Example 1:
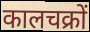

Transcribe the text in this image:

कालचक्रों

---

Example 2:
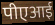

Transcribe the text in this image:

पीएआई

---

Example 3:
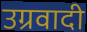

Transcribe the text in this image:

उग्रवादी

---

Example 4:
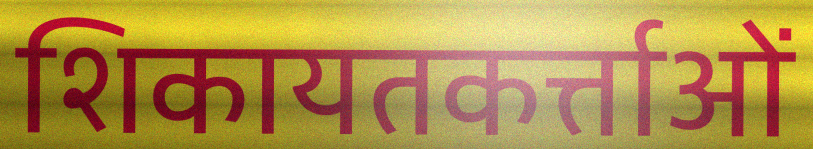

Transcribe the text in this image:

शिकायतकर्त्ताओं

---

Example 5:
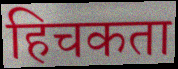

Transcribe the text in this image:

हिचकता